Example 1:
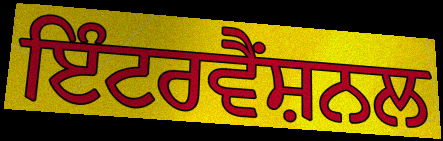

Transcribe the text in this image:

ਇੰਟਰਵੈਂਸ਼ਨਲ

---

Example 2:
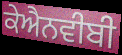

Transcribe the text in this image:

ਕੇਐਨਵੀਬੀ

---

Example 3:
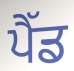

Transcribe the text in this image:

ਪੈੱਡ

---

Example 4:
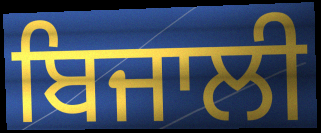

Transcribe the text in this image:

ਬਿਜਾਲੀ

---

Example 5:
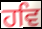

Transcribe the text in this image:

ਹਵਿ